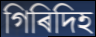
গিৰিদিহ